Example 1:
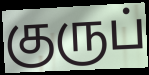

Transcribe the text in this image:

குருப்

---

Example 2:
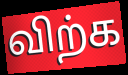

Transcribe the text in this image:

விற்க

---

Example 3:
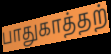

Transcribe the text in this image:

பாதுகாத்தற்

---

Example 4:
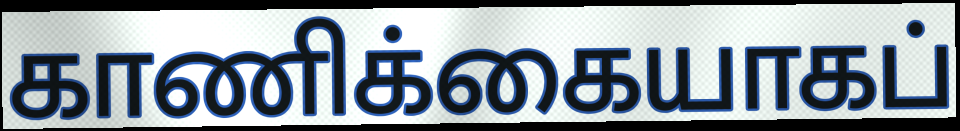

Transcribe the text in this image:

காணிக்கையாகப்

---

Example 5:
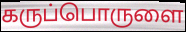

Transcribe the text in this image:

கருப்பொருளை